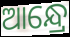
ଆନ୍ଧ୍ରେ